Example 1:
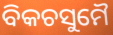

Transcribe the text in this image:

ବିକଚସୁମୈ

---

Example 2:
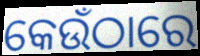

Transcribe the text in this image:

କେଉଁଠାରେ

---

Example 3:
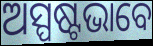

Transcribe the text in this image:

ଅସ୍ପଷ୍ଟଭାବେ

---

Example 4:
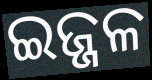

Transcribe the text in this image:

ଇଜ୍ଜଳ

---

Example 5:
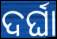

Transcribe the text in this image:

ଦର୍ଘା